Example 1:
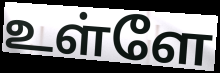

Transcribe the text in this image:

உள்ளே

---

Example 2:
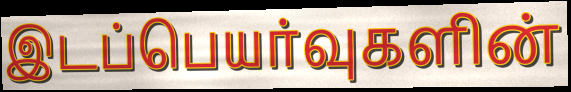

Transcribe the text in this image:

இடப்பெயர்வுகளின்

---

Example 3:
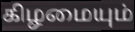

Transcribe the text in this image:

கிழமையும்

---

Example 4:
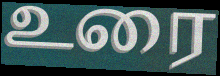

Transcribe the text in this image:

உரை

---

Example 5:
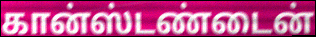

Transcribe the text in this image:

கான்ஸ்டண்டைன்